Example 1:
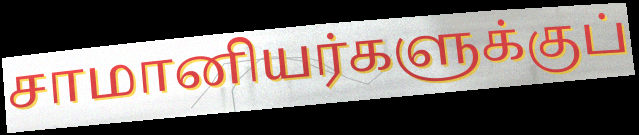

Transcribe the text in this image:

சாமானியர்களுக்குப்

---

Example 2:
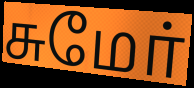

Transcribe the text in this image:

சுமேர்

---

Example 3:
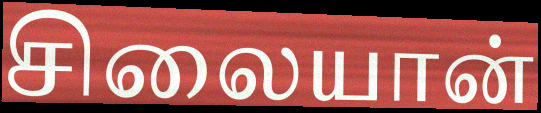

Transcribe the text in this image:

சிலையான்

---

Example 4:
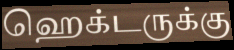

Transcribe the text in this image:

ஹெக்டருக்கு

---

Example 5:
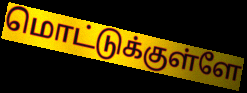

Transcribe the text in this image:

மொட்டுக்குள்ளே